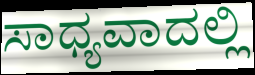
ಸಾಧ್ಯವಾದಲ್ಲಿ